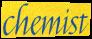
chemist